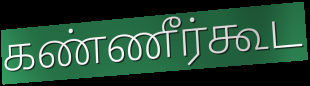
கண்ணீர்கூட